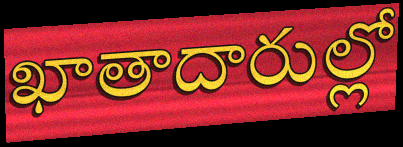
ఖాతాదారుల్లో